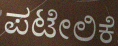
ಪಟೇಲಿಕೆ